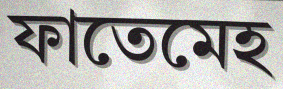
ফাতেমেহ